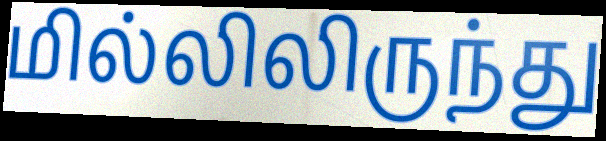
மில்லிலிருந்து